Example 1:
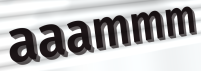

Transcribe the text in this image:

aaammm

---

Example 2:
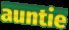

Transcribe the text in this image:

auntie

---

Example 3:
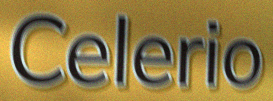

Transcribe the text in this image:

Celerio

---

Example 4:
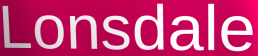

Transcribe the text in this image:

Lonsdale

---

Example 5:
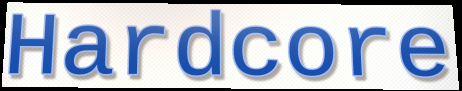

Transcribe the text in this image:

Hardcore